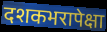
दशकभरापेक्षा